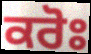
ਕਰੋਃ